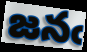
జనఁ